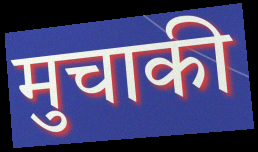
मुचाकी